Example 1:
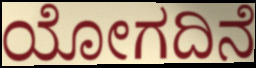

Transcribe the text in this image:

ಯೋಗದಿನೆ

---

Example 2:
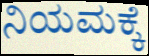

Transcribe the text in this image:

ನಿಯಮಕ್ಕೆ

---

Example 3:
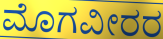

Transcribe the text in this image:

ಮೊಗವೀರರ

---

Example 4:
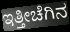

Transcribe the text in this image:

ಇತ್ತೀಚೆಗಿನ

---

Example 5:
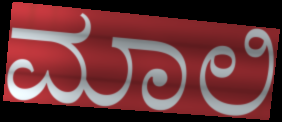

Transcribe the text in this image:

ಮಾಲಿ